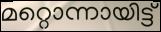
മറ്റൊന്നായിട്ട്